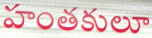
హంతకులూ